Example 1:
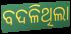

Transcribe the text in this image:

ବଦଳିଥିଲା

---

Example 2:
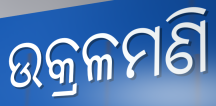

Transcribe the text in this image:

ଉକ୍ରଳମଣି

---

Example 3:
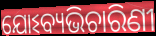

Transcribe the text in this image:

ଯୋଽବ୍ୟଭିଚାରିଣୀ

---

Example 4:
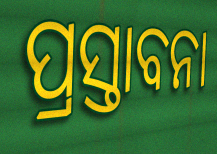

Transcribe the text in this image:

ପ୍ରସ୍ତାବନା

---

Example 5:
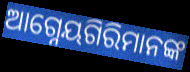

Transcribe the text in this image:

ଆଗ୍ନେୟଗିରିମାନଙ୍କ